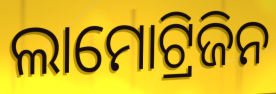
ଲାମୋଟ୍ରିଜିନ